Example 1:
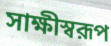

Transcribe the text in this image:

সাক্ষীস্বরূপ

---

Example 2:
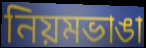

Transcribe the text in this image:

নিয়মভাঙা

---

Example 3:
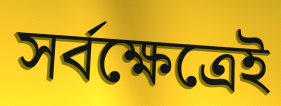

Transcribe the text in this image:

সর্বক্ষেত্রেই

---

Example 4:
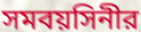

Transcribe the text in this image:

সমবয়সিনীর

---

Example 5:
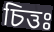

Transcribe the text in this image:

চিত্তঃ